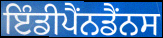
ਇੰਡੀਪੈਂਨਡੈਂਨਸ